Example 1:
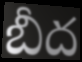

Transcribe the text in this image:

బీద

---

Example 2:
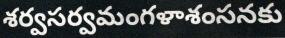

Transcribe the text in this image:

శర్వసర్వమంగళాశంసనకు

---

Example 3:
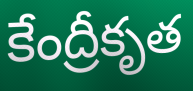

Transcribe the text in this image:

కేంద్రీకృత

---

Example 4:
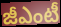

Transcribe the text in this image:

జీఎంటీ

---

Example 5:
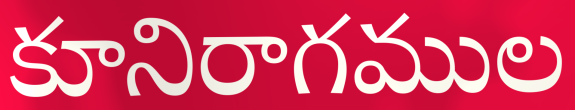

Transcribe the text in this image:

కూనిరాగముల